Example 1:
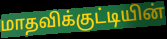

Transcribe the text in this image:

மாதவிக்குட்டியின்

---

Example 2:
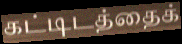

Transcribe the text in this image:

கட்டிடத்தைக்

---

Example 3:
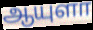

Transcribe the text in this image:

ஆயுளா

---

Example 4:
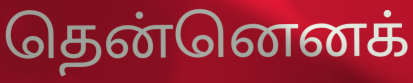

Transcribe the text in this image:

தென்னெனக்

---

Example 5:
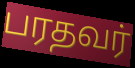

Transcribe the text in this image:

பரதவர்